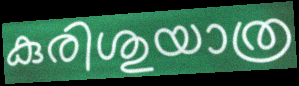
കുരിശുയാത്ര